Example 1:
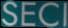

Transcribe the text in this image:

SECI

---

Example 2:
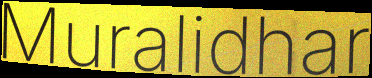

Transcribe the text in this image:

Muralidhar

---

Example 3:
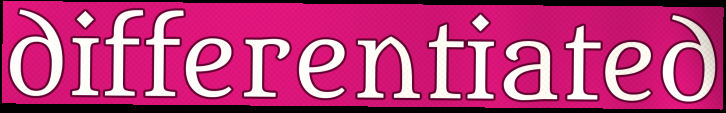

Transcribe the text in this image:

differentiated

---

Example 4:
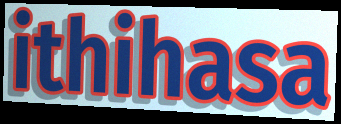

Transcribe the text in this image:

ithihasa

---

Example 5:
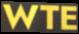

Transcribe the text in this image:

WTE